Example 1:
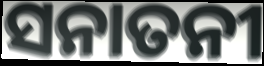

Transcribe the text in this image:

ସନାତନୀ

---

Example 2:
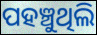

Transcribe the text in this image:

ପହଞ୍ଚୁଥିଲି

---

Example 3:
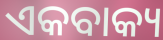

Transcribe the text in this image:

ଏକବାକ୍ୟ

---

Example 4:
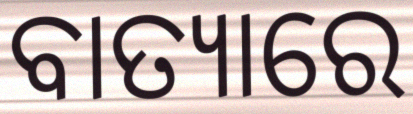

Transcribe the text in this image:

ବାତ୍ୟାରେ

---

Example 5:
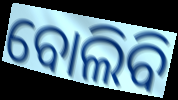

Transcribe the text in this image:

ବୋଲିବି